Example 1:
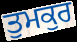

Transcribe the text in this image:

ਤੁਮਕੁਰ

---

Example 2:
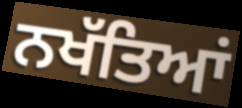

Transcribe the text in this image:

ਨਖੱਤਿਆਂ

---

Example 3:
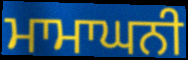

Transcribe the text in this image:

ਮਾਮਾਘਨੀ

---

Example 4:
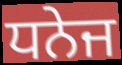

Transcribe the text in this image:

ਧਨੇਜ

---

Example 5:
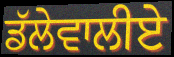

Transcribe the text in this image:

ਡੱਲੇਵਾਲੀਏ